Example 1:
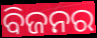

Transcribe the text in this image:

ବିଜନର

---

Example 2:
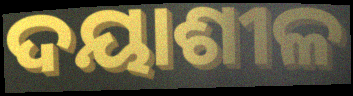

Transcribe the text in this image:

ଦୟାଶୀଳ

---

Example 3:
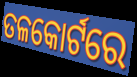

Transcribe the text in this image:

ତଳକୋର୍ଟରେ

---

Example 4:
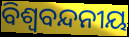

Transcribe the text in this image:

ବିଶ୍ୱବନ୍ଦନୀୟ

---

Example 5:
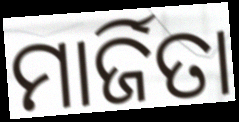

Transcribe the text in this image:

ମାର୍ଜିତା